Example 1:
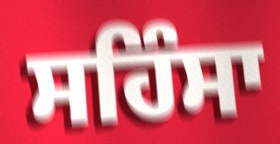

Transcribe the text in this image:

ਸਹਿੰਸਾ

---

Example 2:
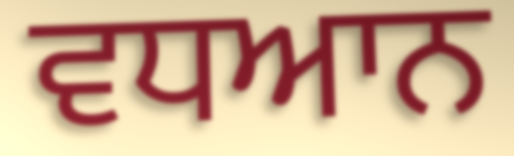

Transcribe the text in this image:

ਵਧਆਨ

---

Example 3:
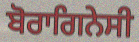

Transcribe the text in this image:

ਬੋਰਾਗਿਨੇਸੀ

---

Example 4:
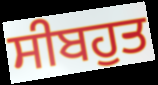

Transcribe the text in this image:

ਸੀਬਹੁਤ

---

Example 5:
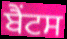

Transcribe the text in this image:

ਬੈਂਟਸ